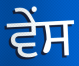
ਵੇਂਸ